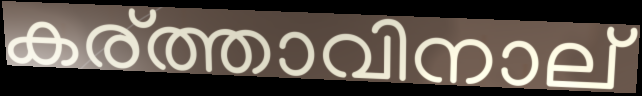
കര്ത്താവിനാല്